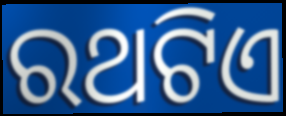
ରଥଟିଏ